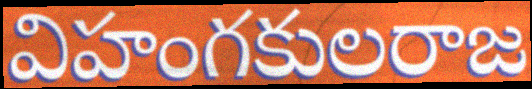
విహంగకులరాజ